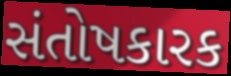
સંતોષકારક